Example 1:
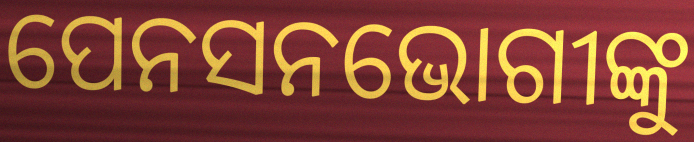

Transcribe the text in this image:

ପେନସନଭୋଗୀଙ୍କୁ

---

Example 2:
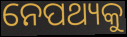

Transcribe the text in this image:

ନେପଥ୍ୟକୁ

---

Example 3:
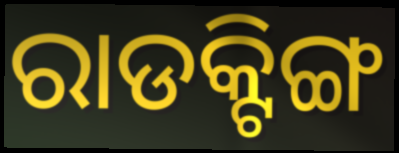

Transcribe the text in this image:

ରାଡକ୍ଟିଙ୍ଗ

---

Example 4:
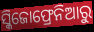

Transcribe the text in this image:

ସ୍କିଜୋଫ୍ରେନିଆରୁ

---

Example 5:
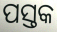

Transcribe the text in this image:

ପସ୍ତକ